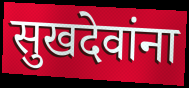
सुखदेवांना